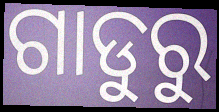
ଗାଡୁରୁ